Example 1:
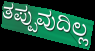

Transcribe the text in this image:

ತಪ್ಪುವುದಿಲ್ಲ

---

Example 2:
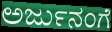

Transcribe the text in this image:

ಅರ್ಜುನಂಗೆ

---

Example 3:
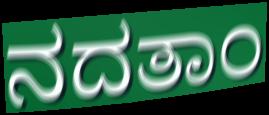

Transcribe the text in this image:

ನದತಾಂ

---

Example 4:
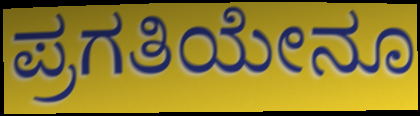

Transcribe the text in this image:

ಪ್ರಗತಿಯೇನೂ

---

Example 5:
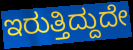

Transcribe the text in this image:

ಇರುತ್ತಿದ್ದುದೇ